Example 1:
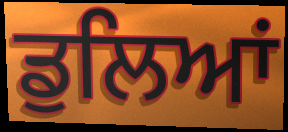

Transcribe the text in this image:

ਡੁਲਿਆਂ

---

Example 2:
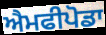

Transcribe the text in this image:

ਐਮਫੀਪੋਡਾ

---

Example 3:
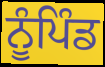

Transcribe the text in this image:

ਨੂੰਪਿੰਡ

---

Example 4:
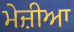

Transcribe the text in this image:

ਮੇਜ਼ੀਆ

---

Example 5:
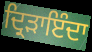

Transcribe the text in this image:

ਦ੍ਰਿੜਾਇੰਦਾ